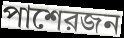
পাশেরজন